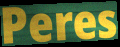
Peres